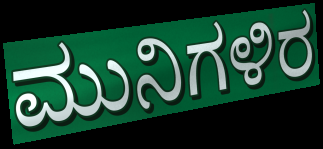
ಮುನಿಗಳಿರ